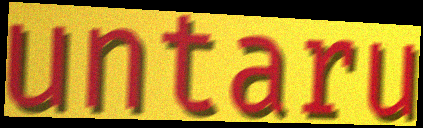
untaru